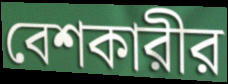
বেশকারীর